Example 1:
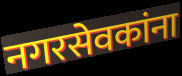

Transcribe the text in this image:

नगरसेवकांना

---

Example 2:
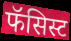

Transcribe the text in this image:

फॅसिस्ट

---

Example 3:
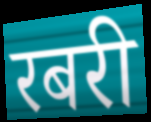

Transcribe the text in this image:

रबरी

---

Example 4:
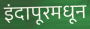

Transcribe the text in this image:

इंदापूरमधून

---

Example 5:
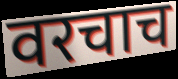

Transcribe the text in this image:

वरचाच